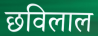
छविलाल